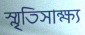
স্মৃতিসাক্ষ্য